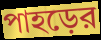
পাহড়ের